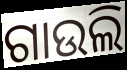
ଗାଉଲି